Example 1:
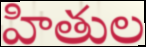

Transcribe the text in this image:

హితుల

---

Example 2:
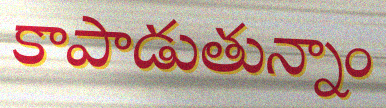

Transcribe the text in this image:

కాపాడుతున్నాం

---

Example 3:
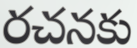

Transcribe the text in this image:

రచనకు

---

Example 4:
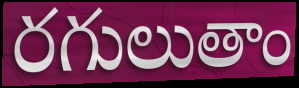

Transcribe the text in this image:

రగులుతాం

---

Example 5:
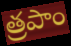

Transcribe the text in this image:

త్రపాం